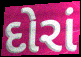
દોરાં